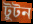
টুটন